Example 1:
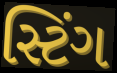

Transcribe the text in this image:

સ્ટિંગ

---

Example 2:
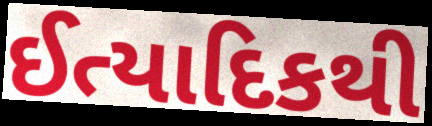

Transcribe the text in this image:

ઈત્યાદિકથી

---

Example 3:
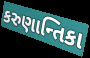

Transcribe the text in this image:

કરુણાન્તિકા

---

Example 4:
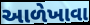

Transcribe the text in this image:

આળેખાવા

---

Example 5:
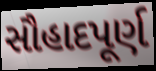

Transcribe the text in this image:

સૌહાદપૂર્ણ